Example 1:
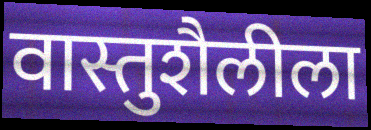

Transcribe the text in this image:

वास्तुशैलीला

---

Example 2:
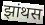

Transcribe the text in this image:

झांथस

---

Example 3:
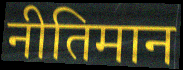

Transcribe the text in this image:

नीतिमान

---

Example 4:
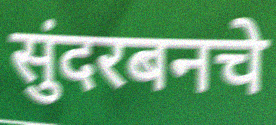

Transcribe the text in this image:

सुंदरबनचे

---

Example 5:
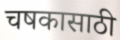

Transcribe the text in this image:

चषकासाठी